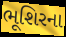
ભૂશિરના